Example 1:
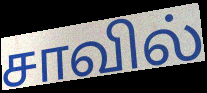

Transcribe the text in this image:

சாவில்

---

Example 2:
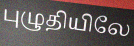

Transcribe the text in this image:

புழுதியிலே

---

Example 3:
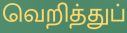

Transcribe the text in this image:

வெறித்துப்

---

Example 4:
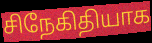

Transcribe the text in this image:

சிநேகிதியாக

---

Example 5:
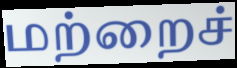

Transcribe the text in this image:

மற்றைச்